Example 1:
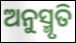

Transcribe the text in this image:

ଅନୁସ୍ମୃତି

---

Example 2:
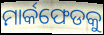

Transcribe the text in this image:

ମାର୍କଫେଡକୁ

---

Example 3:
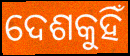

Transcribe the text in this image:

ଦେଶକୁହିଁ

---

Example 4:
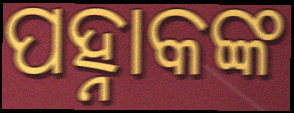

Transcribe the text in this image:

ପହ୍ନାକଙ୍କ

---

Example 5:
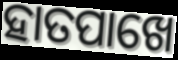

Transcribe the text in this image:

ହାତପାଖେ